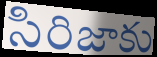
సిరిజాకు